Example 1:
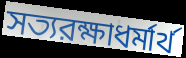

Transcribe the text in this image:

সত্যরক্ষাধর্মার্থ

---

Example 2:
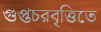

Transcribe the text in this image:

গুপ্তচরবৃত্তিতে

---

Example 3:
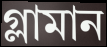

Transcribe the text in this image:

গ্লামান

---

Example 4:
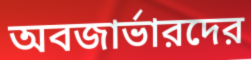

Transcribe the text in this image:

অবজার্ভারদের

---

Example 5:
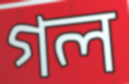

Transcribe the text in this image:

গল